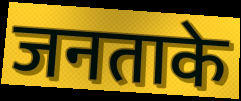
जनताके